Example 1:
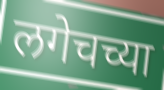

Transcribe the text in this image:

लगेचच्या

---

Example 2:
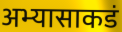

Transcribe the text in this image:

अभ्यासाकडं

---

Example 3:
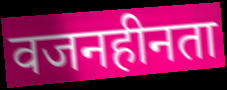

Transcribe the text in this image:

वजनहीनता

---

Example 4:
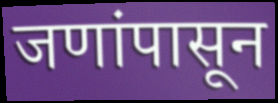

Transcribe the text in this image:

जणांपासून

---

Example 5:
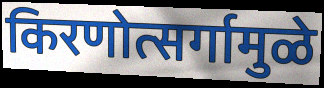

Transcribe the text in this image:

किरणोत्सर्गामुळे